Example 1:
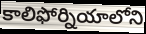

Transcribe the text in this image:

కాలిఫోర్నియాలోని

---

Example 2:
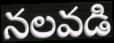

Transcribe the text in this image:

నలవడి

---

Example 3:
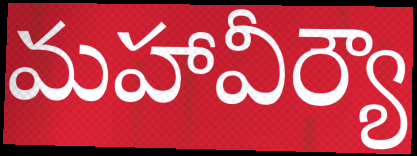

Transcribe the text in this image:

మహావీర్యౌ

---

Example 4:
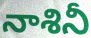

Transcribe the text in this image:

నాశినీ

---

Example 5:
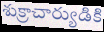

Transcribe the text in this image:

శుక్రాచార్యుడికి